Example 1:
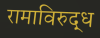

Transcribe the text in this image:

रामाविरुद्ध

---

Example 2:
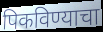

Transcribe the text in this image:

पिकविण्याचा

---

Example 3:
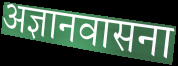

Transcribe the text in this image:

अज्ञानवासना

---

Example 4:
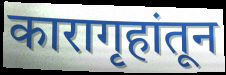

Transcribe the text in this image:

कारागृहांतून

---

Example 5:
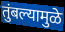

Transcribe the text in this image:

तुंबल्यामुळे